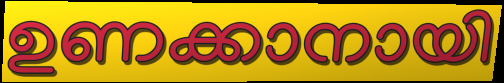
ഉണക്കാനായി